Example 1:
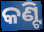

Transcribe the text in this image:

କଣ୍ଟି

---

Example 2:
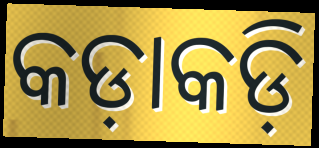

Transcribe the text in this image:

କଡ଼ାକଡ଼ି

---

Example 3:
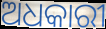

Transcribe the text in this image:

ଅଧକାରୀ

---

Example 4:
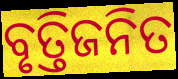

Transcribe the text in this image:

ବୃତ୍ତିଜନିତ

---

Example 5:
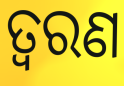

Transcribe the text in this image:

ତ୍ୱରଣ